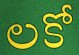
లకో